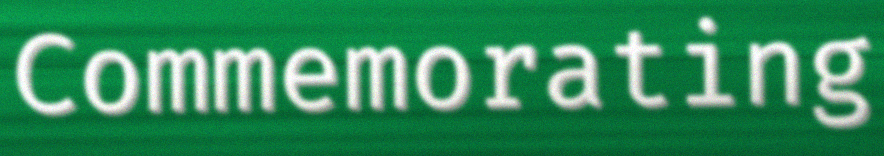
Commemorating